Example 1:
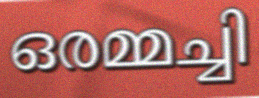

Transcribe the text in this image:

ഒരമ്മച്ചി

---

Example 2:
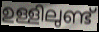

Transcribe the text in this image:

ഉള്ളിലുണ്ട്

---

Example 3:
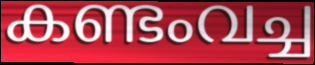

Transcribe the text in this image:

കണ്ടംവച്ച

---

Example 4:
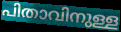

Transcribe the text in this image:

പിതാവിനുള്ള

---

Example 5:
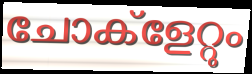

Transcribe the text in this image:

ചോക്ളേറ്റും